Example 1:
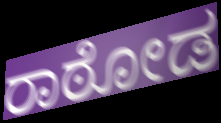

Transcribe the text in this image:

ರಾಠೋಡ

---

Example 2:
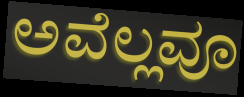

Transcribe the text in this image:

ಅವೆಲ್ಲವೂ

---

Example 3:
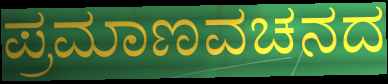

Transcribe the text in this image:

ಪ್ರಮಾಣವಚನದ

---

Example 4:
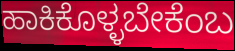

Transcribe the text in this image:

ಹಾಕಿಕೊಳ್ಳಬೇಕೆಂಬ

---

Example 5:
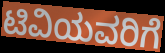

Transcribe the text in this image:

ಟಿವಿಯವರಿಗೆ